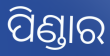
ପିଣ୍ଡାର